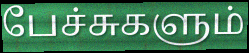
பேச்சுகளும்